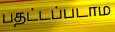
பதட்டப்படாம